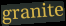
granite